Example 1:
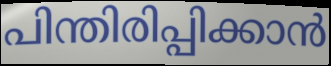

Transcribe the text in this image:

പിന്തിരിപ്പിക്കാൻ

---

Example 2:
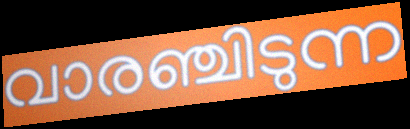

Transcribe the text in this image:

വാരഞ്ചിടുന്ന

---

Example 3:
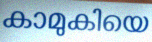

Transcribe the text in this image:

കാമുകിയെ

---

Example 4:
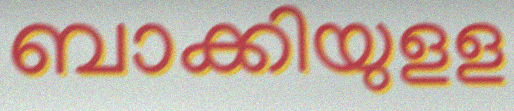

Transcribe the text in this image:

ബാക്കിയുളള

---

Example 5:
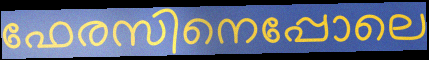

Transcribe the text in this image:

ഫേരസിനെപ്പോലെ